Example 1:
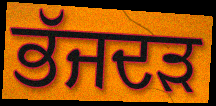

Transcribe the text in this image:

ਭੱਜਦੜ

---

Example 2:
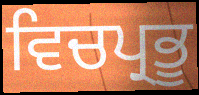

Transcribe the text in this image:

ਵਿਚਪ੍ਰਭੂ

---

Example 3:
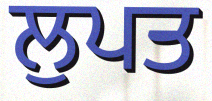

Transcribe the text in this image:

ਲੁਪਤ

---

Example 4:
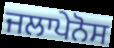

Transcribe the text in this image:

ਜਲਾਪੇਨੋਸ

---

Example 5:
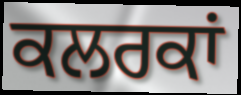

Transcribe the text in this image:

ਕਲਰਕਾਂ